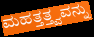
ಮಹತ್ತತ್ತ್ವವನ್ನು